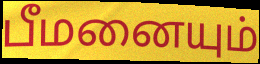
பீமனையும்